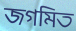
জগমিত